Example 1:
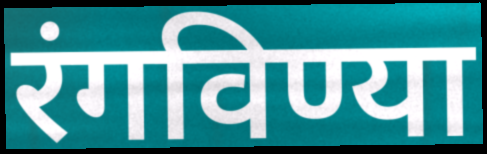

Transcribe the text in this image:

रंगविण्या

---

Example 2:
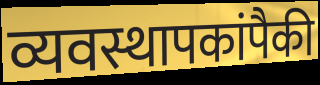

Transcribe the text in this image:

व्यवस्थापकांपैकी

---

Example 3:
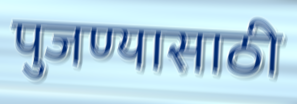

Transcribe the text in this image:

पुजण्यासाठी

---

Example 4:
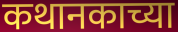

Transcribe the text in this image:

कथानकाच्या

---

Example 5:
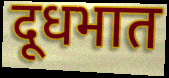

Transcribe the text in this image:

दूधभात